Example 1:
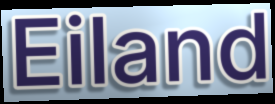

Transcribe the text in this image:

Eiland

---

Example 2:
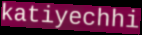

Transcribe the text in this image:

katiyechhi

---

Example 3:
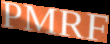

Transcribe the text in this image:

PMRF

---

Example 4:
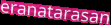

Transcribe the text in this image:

eranatarasan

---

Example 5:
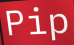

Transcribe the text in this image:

Pip